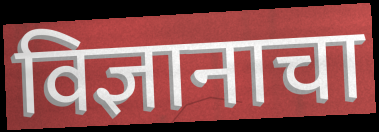
विज्ञानाचा